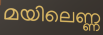
മയിലെണ്ണ